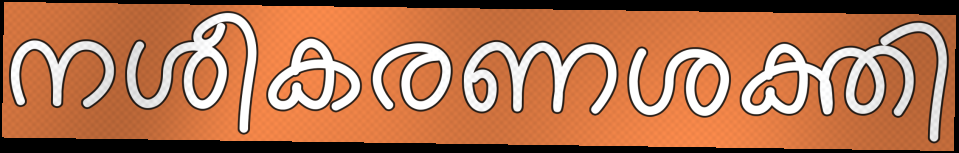
നശീകരണശക്തി